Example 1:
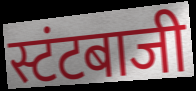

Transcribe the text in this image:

स्टंटबाजी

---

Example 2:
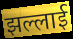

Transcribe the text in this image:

झल्लाई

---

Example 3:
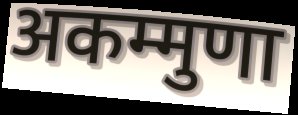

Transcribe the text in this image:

अकम्मुणा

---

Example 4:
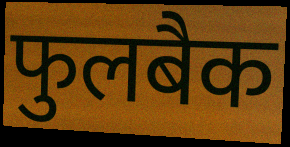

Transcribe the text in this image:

फुलबैक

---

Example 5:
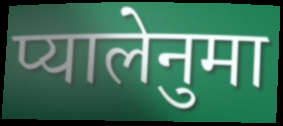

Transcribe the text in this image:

प्यालेनुमा